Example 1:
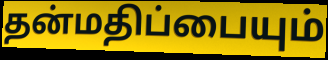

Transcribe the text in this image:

தன்மதிப்பையும்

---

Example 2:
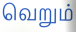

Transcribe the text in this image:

வெறும்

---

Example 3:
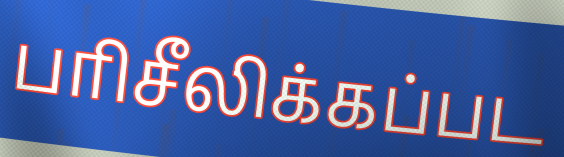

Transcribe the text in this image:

பரிசீலிக்கப்பட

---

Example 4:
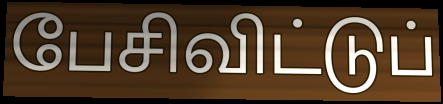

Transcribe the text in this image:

பேசிவிட்டுப்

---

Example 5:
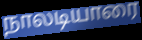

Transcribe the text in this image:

நாலடியாரை